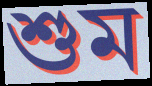
শুম